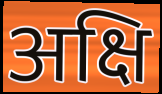
अक्षि